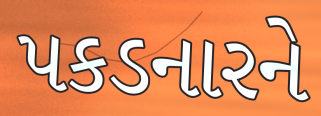
પકડનારને